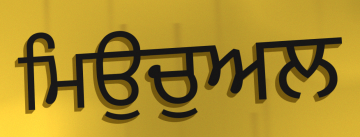
ਮਿਉਚੁਅਲ